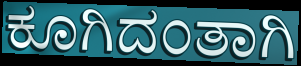
ಕೂಗಿದಂತಾಗಿ